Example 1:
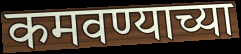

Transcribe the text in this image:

कमवण्याच्या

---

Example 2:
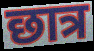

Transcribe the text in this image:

छात्र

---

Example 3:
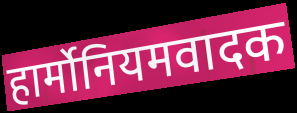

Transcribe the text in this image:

हार्मोनियमवादक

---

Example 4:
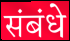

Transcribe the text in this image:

संबंधे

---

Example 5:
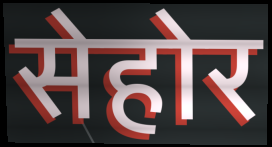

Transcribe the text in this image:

सेहोर